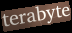
terabyte